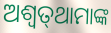
ଅଶ୍ୱତ୍‌ଥାମାଙ୍କ